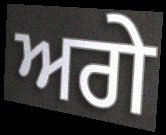
ਅਗੇ